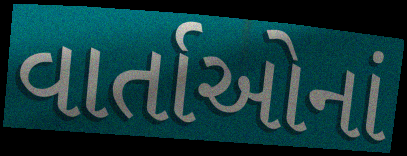
વાર્તાઓનાં